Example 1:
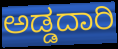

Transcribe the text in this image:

ಅಡ್ಡದಾರಿ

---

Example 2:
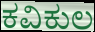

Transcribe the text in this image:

ಕವಿಕುಲ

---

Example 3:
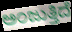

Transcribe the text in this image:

ಅಂಜುತ್ತಿದೆ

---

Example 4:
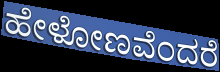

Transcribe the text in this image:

ಹೇಳೋಣವೆಂದರೆ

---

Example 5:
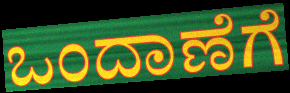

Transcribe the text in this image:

ಒಂದಾಣೆಗೆ